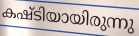
കഷ്ടിയായിരുന്നു